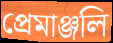
প্রেমাঞ্জলি